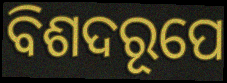
ବିଶଦରୂପେ